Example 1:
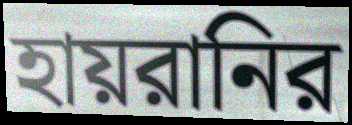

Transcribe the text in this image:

হায়রানির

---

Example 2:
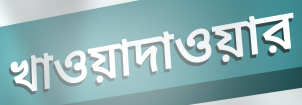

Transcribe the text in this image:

খাওয়াদাওয়ার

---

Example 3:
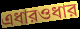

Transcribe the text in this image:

এধারওধার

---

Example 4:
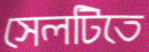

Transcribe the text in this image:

সেলটিতে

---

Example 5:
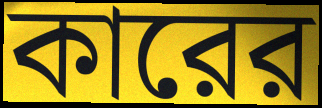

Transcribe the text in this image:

কারের